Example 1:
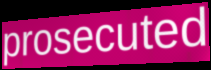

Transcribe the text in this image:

prosecuted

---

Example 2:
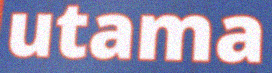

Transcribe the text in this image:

utama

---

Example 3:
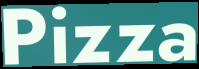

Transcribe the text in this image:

Pizza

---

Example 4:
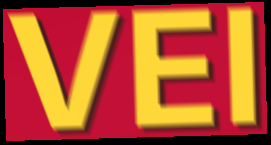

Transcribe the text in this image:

VEI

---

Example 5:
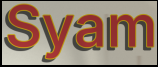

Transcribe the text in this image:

Syam